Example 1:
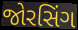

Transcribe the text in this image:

જોરસિંગ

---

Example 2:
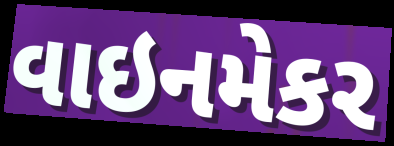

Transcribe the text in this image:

વાઇનમેકર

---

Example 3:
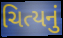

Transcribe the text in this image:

ચિત્યનું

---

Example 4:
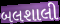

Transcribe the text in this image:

બલશાલી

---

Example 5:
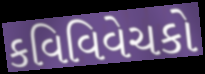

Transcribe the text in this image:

કવિવિવેચકો